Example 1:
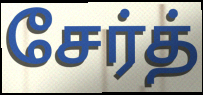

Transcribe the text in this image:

சேர்த்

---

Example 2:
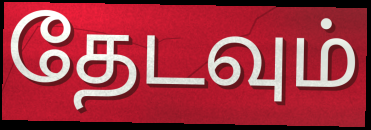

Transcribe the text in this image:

தேடவும்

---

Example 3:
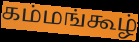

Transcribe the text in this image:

கம்மங்கூழ்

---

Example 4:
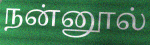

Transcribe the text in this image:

நன்னூல்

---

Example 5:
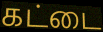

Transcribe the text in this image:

கட்டை